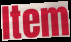
Item